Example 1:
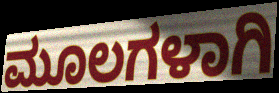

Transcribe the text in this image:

ಮೂಲಗಳಾಗಿ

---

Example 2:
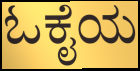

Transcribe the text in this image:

ಓಕೈಯ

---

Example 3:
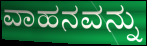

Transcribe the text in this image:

ವಾಹನವನ್ನು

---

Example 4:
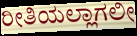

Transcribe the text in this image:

ರೀತಿಯಲ್ಲಾಗಲೀ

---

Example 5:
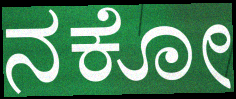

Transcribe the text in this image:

ನಕೋ